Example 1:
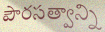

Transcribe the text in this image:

పౌరసత్వాన్ని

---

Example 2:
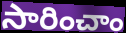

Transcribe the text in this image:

సారించాం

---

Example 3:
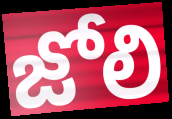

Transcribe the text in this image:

జోలి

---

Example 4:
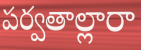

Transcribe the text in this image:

పర్వతాల్లారా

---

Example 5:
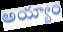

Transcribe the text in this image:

అయ్యాం